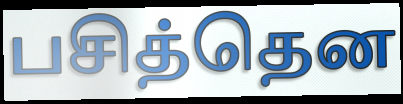
பசித்தென